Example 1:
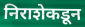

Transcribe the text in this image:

निराशेकडून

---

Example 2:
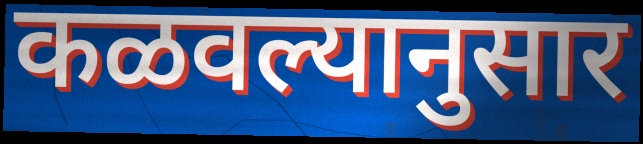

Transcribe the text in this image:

कळवल्यानुसार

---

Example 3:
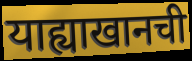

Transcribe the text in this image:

याह्याखानची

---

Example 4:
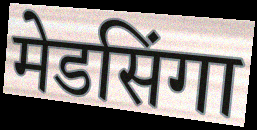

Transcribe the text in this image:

मेडसिंगा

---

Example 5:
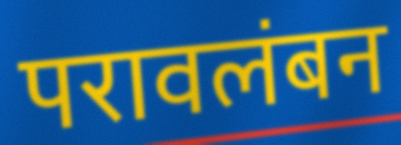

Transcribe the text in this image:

परावलंबन